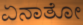
ಏನಾತೋ